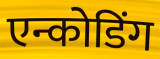
एन्कोडिंग